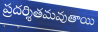
ప్రదర్శితమవుతాయి